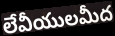
లేవీయులమీద